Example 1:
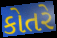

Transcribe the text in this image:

કોતરે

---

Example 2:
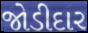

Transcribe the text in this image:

જોડીદાર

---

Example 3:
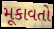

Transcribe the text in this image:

મૂકાવતો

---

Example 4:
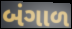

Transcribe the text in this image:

બંગાળ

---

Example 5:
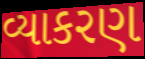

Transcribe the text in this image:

વ્યાકરણ